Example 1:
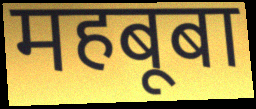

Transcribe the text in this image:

महबूबा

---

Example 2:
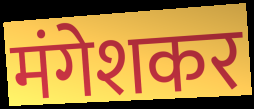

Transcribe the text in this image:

मंगेशकर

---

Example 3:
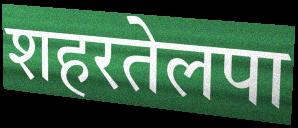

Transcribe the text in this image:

शहरतेलपा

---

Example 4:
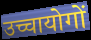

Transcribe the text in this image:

उच्‍चायोगों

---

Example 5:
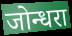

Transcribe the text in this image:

जोन्धरा